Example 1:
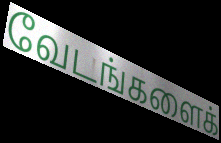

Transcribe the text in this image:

வேடங்களைக்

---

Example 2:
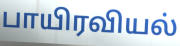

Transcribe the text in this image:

பாயிரவியல்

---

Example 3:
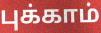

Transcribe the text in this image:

புக்காம்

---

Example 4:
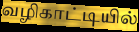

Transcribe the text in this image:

வழிகாட்டியில்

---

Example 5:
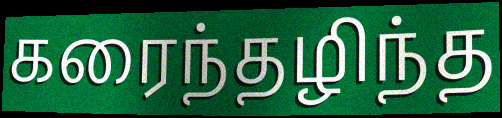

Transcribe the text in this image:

கரைந்தழிந்த